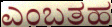
ಎಂಬತಹ